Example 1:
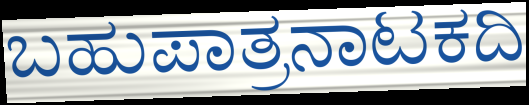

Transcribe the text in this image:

ಬಹುಪಾತ್ರನಾಟಕದಿ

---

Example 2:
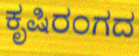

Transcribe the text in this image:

ಕೃಷಿರಂಗದ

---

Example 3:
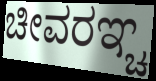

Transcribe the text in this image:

ಚೀವರಞ್ಚ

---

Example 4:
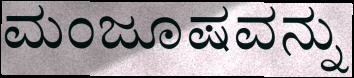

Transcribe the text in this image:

ಮಂಜೂಷವನ್ನು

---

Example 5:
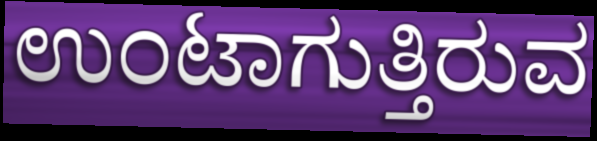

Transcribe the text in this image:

ಉಂಟಾಗುತ್ತಿರುವ